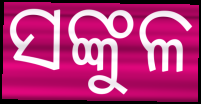
ସଙ୍କୁଳ